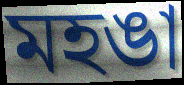
মহঙা